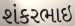
શંકરભાઇ